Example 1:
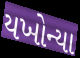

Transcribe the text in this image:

યખોન્યા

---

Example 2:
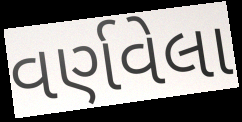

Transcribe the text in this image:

વર્ણવેલા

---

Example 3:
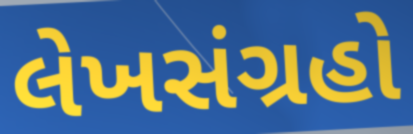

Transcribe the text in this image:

લેખસંગ્રહો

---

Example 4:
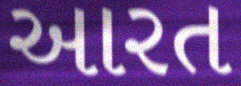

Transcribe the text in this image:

આરત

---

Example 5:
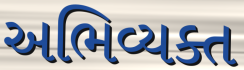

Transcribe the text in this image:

અભિવ્યક્ત